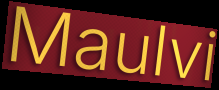
Maulvi